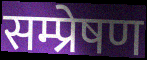
सम्प्रेषण